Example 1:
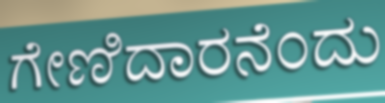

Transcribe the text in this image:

ಗೇಣಿದಾರನೆಂದು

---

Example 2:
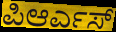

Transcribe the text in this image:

ಪಿಆರ್ಎಸ್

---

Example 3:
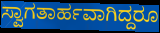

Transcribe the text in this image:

ಸ್ವಾಗತಾರ್ಹವಾಗಿದ್ದರೂ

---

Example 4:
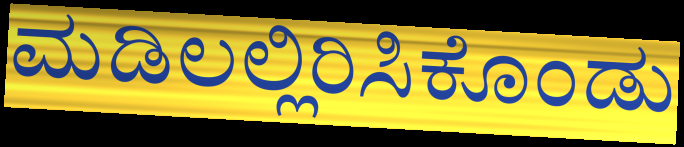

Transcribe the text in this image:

ಮಡಿಲಲ್ಲಿರಿಸಿಕೊಂಡು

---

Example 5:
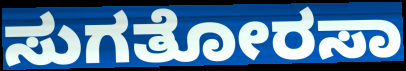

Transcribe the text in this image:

ಸುಗತೋರಸಾ